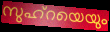
സുഹ്റയെയും